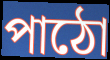
পাঠো